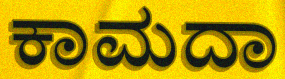
ಕಾಮದಾ